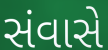
સંવાસે